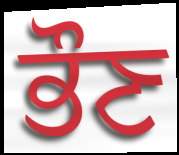
ਭੌਣ